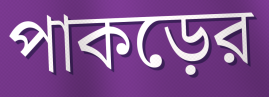
পাকড়ের